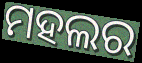
ମହଲର